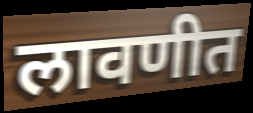
लावणीत